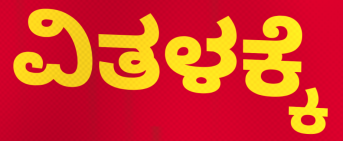
ವಿತಳಕ್ಕೆ